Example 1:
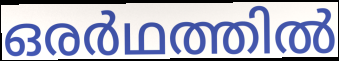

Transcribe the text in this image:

ഒരർഥത്തിൽ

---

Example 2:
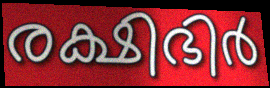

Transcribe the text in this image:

രക്ഷിഭിർ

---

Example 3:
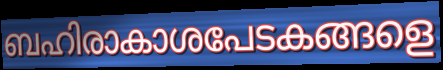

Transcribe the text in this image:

ബഹിരാകാശപേടകങ്ങളെ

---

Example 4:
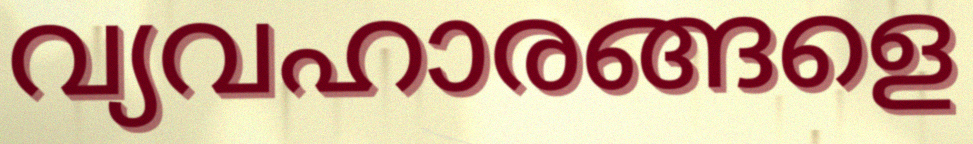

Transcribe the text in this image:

വ്യവഹാരങ്ങളെ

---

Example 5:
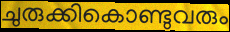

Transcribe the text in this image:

ചുരുക്കികൊണ്ടുവരും